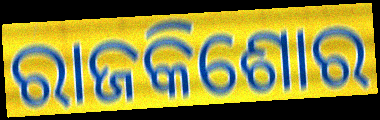
ରାଜକିଶୋର